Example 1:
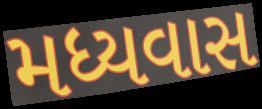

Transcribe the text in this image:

મધ્યવાસ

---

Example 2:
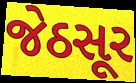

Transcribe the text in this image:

જેઠસૂર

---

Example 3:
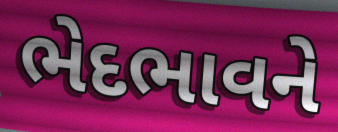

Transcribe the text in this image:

ભેદભાવને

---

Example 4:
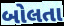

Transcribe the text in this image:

બોલતા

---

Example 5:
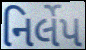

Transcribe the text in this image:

નિર્લેપ